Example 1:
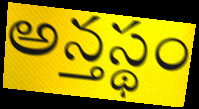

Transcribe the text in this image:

అన్తస్థం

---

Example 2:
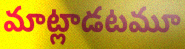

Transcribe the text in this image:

మాట్లాడటమూ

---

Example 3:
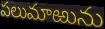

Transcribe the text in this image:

పలుమాఱును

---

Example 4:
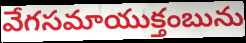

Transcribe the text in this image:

వేగసమాయుక్తంబును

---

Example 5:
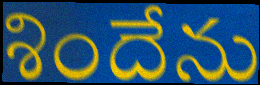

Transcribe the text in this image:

శిందేను